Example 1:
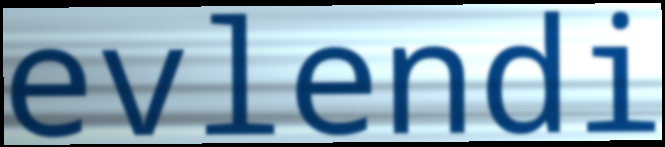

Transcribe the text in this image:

evlendi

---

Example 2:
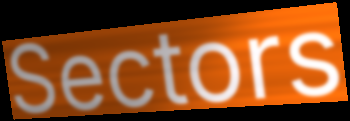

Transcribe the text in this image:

Sectors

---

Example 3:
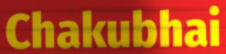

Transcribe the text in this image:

Chakubhai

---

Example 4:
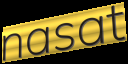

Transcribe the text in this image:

nasat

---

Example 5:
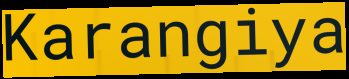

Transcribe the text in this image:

Karangiya